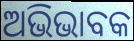
ଅଭିଭାବକ